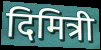
दिमित्री